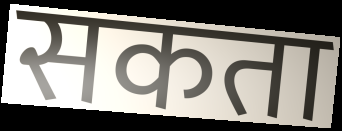
सकता